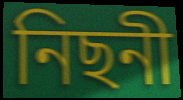
নিছনী